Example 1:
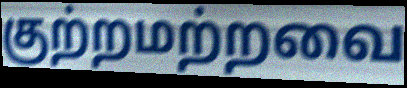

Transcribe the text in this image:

குற்றமற்றவை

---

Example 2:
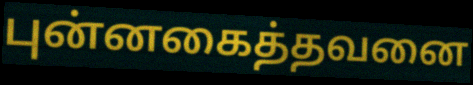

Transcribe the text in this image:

புன்னகைத்தவனை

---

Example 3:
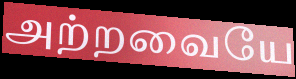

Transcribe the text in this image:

அற்றவையே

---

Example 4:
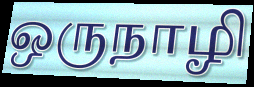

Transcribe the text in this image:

ஒருநாழி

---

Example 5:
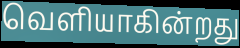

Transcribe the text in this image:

வெளியாகின்றது